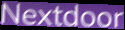
Nextdoor